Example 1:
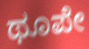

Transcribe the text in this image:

ಥೂಪೇ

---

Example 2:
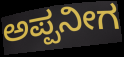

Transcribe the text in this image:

ಅಪ್ಪನೀಗ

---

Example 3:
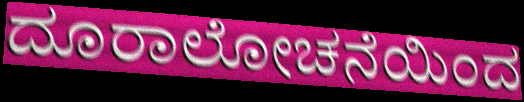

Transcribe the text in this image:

ದೂರಾಲೋಚನೆಯಿಂದ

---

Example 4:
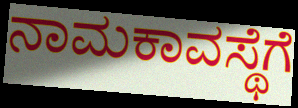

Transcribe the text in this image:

ನಾಮಕಾವಸ್ಥೆಗೆ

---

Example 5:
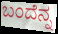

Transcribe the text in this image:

ಬಂದೆನ್ನ